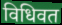
विधिवत